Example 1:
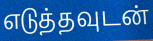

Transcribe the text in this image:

எடுத்தவுடன்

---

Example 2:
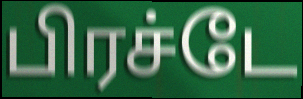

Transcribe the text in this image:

பிரச்டே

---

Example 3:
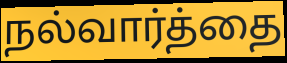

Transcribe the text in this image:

நல்வார்த்தை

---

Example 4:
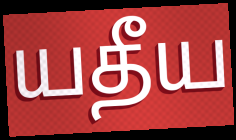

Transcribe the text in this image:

யதீய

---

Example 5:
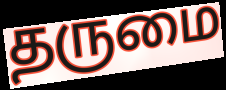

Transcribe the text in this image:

தருமை